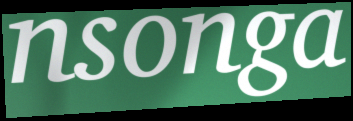
nsonga